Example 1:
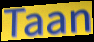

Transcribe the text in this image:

Taan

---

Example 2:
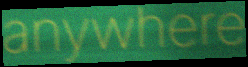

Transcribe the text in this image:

anywhere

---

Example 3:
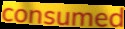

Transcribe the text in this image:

consumed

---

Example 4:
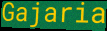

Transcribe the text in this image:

Gajaria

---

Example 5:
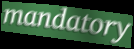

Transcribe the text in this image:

mandatory